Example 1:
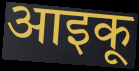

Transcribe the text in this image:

आइकू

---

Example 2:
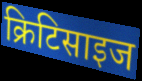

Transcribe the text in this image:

क्रिटिसाइज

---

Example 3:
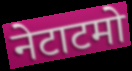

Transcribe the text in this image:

नेटाटमो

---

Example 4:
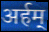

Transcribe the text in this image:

अर्हम्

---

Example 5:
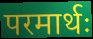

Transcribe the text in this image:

परमार्थः